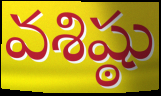
వశిష్ఠు